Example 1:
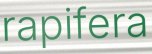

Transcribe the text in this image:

rapifera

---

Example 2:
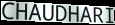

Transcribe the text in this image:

CHAUDHARI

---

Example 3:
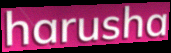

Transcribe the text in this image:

harusha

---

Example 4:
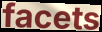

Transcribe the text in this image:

facets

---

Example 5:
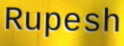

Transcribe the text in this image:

Rupesh